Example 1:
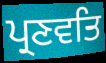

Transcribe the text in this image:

ਪ੍ਰਣਵਤਿ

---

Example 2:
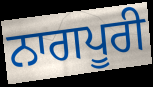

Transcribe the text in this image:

ਨਾਗਪੂਰੀ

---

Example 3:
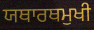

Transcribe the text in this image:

ਯਥਾਰਥਮੁਖੀ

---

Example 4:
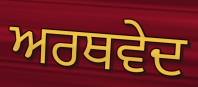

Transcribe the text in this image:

ਅਰਥਵੇਦ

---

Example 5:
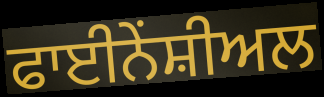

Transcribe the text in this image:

ਫਾਈਨੇਂਸ਼ੀਅਲ